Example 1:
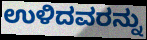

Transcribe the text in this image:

ಉಳಿದವರನ್ನು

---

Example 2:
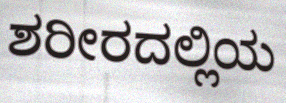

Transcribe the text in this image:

ಶರೀರದಲ್ಲಿಯ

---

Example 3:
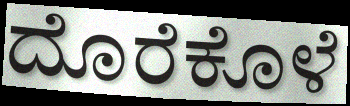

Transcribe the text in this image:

ದೊರೆಕೊಳೆ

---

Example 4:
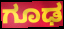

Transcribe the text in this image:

ಗೂಢ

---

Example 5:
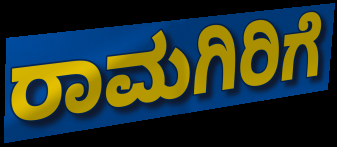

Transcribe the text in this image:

ರಾಮಗಿರಿಗೆ